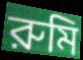
রুমি